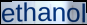
ethanol